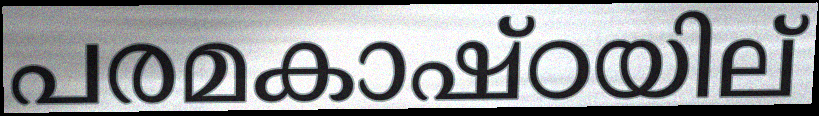
പരമകാഷ്ഠയില്